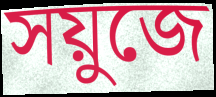
সয়ুজে